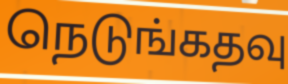
நெடுங்கதவு